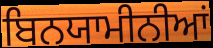
ਬਿਨਯਾਮੀਨੀਆਂ